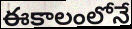
ఈకాలంలోనే